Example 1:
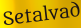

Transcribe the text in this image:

Setalvad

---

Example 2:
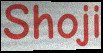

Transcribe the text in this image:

Shoji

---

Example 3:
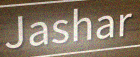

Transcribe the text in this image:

Jashar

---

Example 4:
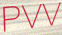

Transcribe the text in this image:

PVV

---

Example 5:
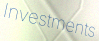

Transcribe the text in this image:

Investments